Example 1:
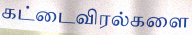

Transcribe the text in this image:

கட்டைவிரல்களை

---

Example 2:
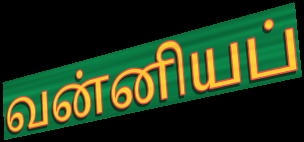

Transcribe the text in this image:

வன்னியப்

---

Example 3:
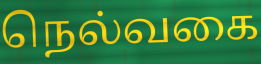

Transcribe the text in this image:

நெல்வகை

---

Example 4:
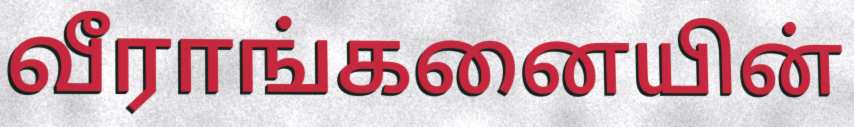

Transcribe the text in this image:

வீராங்கனையின்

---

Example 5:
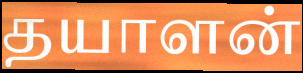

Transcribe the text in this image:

தயாளன்